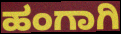
ಹಂಗಾಗಿ